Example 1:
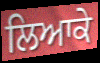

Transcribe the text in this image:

ਲਿਆਕੇ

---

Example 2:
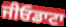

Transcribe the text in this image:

ਜੀਓਡਾਟਾ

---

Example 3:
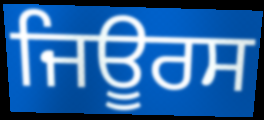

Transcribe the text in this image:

ਜਿਊਰਸ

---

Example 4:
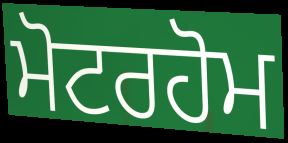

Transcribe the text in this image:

ਮੋਟਰਹੋਮ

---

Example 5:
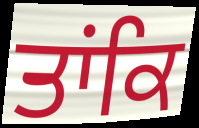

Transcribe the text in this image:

ਤਾਂਕਿ